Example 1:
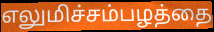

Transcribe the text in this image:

எலுமிச்சம்பழத்தை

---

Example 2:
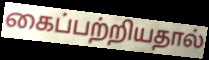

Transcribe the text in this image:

கைப்பற்றியதால்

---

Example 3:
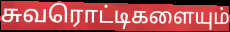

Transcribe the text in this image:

சுவரொட்டிகளையும்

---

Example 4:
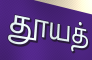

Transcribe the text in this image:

தூயத்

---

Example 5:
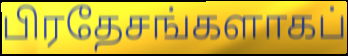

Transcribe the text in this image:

பிரதேசங்களாகப்